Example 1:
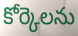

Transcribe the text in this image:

కోర్కెలను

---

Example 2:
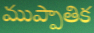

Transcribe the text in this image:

ముప్పాతిక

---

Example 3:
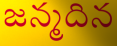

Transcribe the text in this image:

జన్మదిన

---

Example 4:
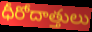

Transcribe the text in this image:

ధీరోదాత్తులు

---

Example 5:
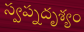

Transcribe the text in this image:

స్వప్నదృశ్యం